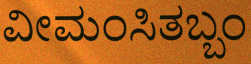
ವೀಮಂಸಿತಬ್ಬಂ